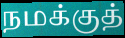
நமக்குத்